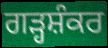
ਗੜ੍ਹਸ਼ੰਕਰ